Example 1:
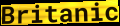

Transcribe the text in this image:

Britanic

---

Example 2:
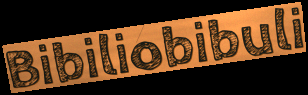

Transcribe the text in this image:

Bibiliobibuli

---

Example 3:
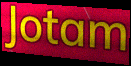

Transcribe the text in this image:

Jotam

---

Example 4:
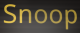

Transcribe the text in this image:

Snoop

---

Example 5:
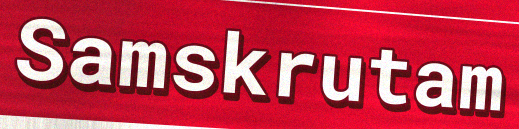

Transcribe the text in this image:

Samskrutam